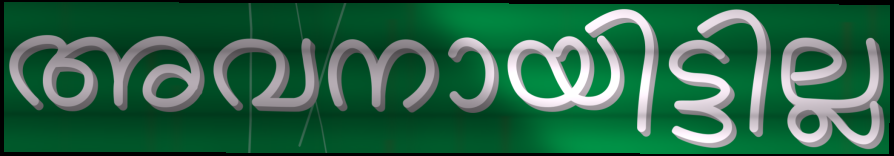
അവനായിട്ടില്ല